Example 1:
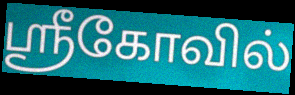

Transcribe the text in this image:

ஸ்ரீகோவில்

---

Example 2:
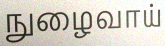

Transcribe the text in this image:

நுழைவாய்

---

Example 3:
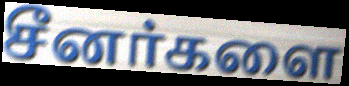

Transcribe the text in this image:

சீனர்களை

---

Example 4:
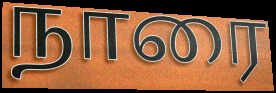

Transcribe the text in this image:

நாரை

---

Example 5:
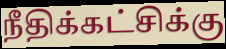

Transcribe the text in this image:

நீதிக்கட்சிக்கு